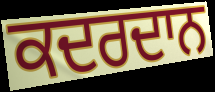
ਕਦਰਦਾਨ